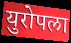
युरोपला